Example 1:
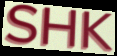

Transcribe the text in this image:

SHK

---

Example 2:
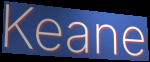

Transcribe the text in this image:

Keane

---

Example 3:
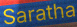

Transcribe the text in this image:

Saratha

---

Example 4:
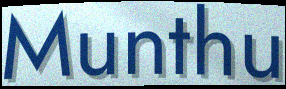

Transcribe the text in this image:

Munthu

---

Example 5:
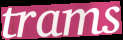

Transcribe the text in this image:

trams